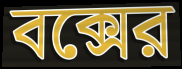
বক্সের